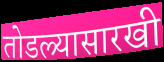
तोडल्यासारखी